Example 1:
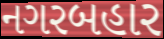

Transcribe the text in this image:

નગરબહાર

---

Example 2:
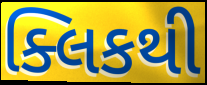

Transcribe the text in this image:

ક્લિકથી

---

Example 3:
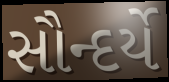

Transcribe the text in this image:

સૌન્દર્યે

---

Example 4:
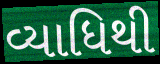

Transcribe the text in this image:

વ્યાધિથી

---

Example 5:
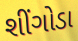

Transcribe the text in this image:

શીંગોડા